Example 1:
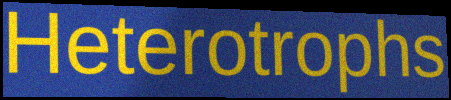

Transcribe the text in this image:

Heterotrophs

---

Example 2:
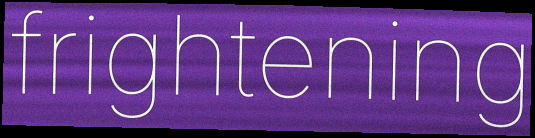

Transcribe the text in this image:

frightening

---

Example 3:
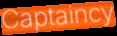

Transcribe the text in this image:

Captaincy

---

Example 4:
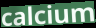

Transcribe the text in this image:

calcium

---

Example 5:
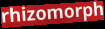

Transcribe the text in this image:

rhizomorph